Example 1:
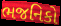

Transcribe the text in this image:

ભજનિકો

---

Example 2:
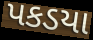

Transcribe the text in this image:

પકડયા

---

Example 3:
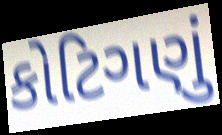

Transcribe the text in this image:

કોટિગણું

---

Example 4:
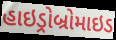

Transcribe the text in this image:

હાઇડ્રોબ્રોમાઇડ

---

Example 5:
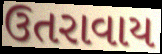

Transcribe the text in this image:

ઉતરાવાય